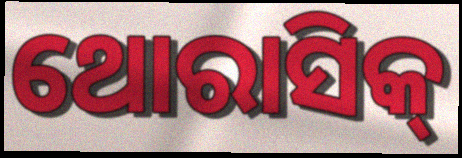
ଥୋରାସିକ୍